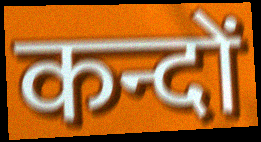
कन्दों